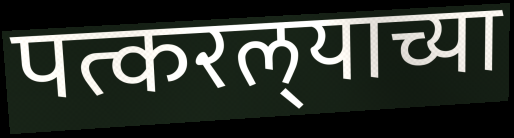
पत्करल्याच्या